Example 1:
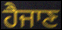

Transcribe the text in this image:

ਹੈਜਾਣ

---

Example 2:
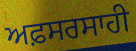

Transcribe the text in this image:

ਅਫ਼ਸਰਸਾਹੀ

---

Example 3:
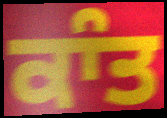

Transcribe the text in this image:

ਕਾੰਤ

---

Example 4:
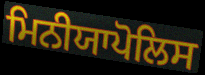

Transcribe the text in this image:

ਮਿਨੀਯਾਪੋਲਿਸ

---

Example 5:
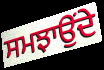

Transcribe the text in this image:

ਸਮਝਾਉਂਦੇ